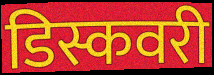
डिस्कवरी